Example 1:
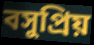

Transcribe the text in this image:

বসুপ্রিয়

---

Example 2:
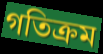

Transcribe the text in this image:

গতিক্রম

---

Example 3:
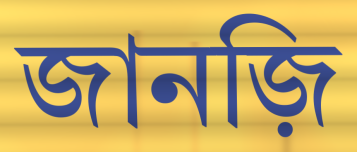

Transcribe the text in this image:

জানজ়ি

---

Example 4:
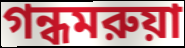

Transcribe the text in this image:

গন্ধমরুয়া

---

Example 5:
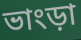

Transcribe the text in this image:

ভাংড়া